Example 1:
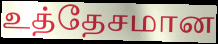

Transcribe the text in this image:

உத்தேசமான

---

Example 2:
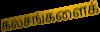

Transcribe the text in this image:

கலசங்களைக்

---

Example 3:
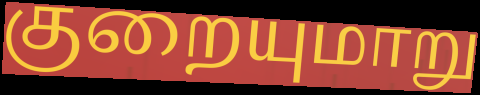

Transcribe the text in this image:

குறையுமாறு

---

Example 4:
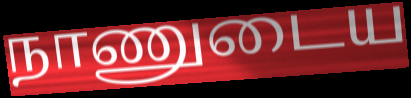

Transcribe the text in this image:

நாணுடைய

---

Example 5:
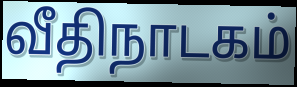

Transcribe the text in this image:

வீதிநாடகம்